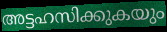
അട്ടഹസിക്കുകയും